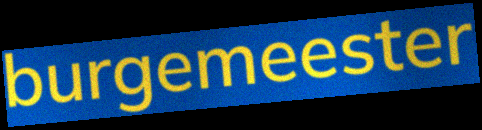
burgemeester